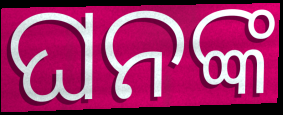
ଘନଙ୍କ